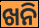
ଖନି